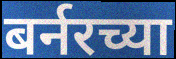
बर्नरच्या